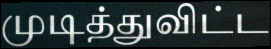
முடித்துவிட்ட